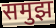
समुझ